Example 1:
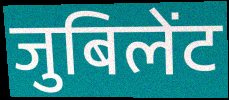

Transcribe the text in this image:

जुबिलेंट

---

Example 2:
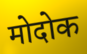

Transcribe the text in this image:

मोदोक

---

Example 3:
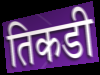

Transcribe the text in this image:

तिकडी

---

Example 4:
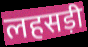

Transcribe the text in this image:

लहसड़ी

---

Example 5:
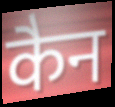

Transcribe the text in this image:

कैन